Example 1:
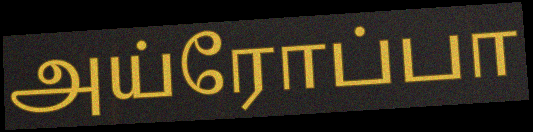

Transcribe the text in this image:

அய்ரோப்பா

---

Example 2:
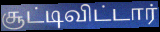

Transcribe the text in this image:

சூட்டிவிட்டார்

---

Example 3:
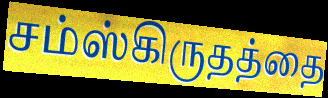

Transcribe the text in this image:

சம்ஸ்கிருதத்தை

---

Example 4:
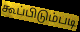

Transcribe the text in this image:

கூப்பிடும்படி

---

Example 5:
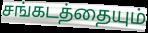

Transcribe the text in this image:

சங்கடத்தையும்